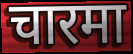
चारमा